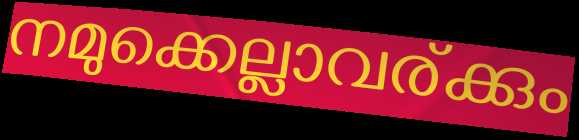
നമുക്കെല്ലാവര്ക്കും